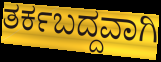
ತರ್ಕಬದ್ದವಾಗಿ